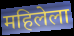
महिलेला